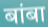
बांबा